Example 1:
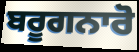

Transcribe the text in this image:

ਬਰੂਗਨਾਰੋ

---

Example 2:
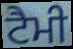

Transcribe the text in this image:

ਟੈਮੀ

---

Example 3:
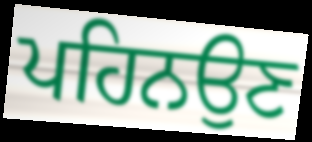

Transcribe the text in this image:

ਪਹਿਨਉਣ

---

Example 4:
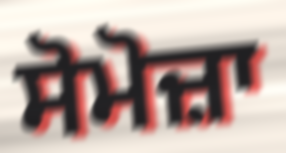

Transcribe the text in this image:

ਸੋਮੋਜ਼ਾ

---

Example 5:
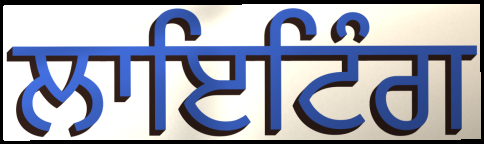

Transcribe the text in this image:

ਲਾਇਟਿੰਗ